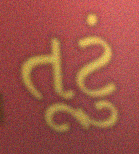
તૂટું